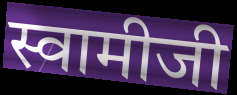
स्वामीजी